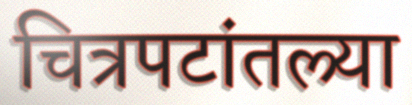
चित्रपटांतल्या